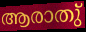
ആരാതു്